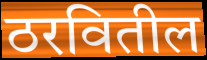
ठरवितील